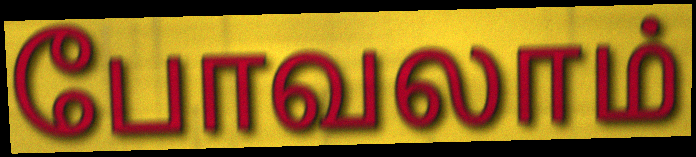
போவலாம்